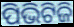
ପିଭିଟିଜି